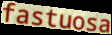
fastuosa